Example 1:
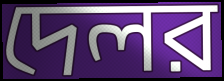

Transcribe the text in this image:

দেলর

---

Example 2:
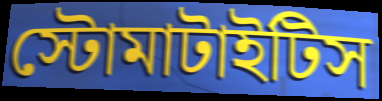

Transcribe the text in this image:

স্টোমাটাইটিস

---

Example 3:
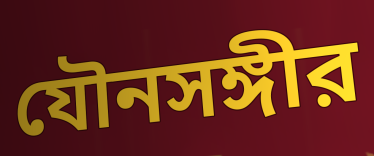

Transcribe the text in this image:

যৌনসঙ্গীর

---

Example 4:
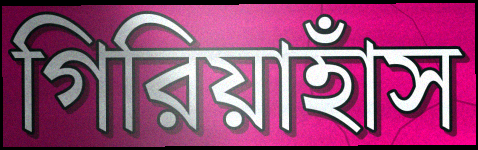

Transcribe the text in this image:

গিরিয়াহাঁস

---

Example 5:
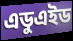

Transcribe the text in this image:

এডুএইড